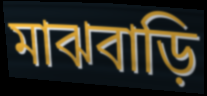
মাঝবাড়ি